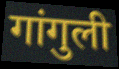
गांगुली